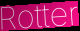
Rotter